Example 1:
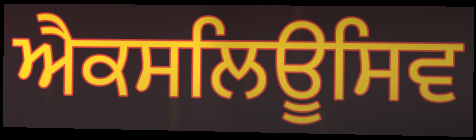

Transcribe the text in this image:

ਐਕਸਲਿਊਸਿਵ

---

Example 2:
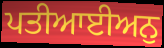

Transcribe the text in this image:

ਪਤੀਆਈਅਨੁ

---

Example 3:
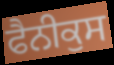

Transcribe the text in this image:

ਫੈਨੀਕੁਸ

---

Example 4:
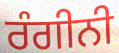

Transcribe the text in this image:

ਰੰਗੀਨੀ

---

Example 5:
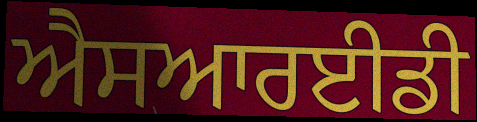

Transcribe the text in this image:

ਐਸਆਰਈਡੀ